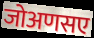
जोअणसए